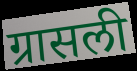
ग्रासली